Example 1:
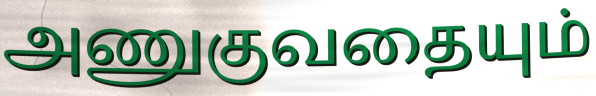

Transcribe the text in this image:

அணுகுவதையும்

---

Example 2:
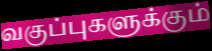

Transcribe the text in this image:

வகுப்புகளுக்கும்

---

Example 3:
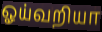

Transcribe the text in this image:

ஓய்வறியா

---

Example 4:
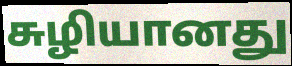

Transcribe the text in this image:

சுழியானது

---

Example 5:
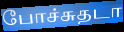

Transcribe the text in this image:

போச்சுதடா